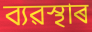
ব্যৱস্থাৰ